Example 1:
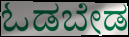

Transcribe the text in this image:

ಓಡಬೇಡ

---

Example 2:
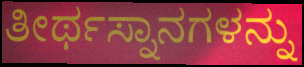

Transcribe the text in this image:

ತೀರ್ಥಸ್ನಾನಗಳನ್ನು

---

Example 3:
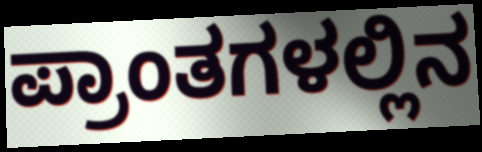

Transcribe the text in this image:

ಪ್ರಾಂತಗಳಲ್ಲಿನ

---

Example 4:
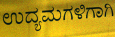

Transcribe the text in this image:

ಉದ್ಯಮಗಳಿಗಾಗಿ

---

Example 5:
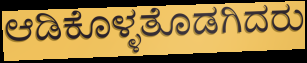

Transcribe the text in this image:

ಆಡಿಕೊಳ್ಳತೊಡಗಿದರು